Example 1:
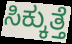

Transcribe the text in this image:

ಸಿಕ್ಕುತ್ತೆ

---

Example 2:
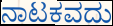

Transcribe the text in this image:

ನಾಟಕವದು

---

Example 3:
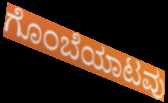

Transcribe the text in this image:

ಗೊಂಬೆಯಾಟವು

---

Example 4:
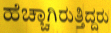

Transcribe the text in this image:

ಹೆಚ್ಚಾಗಿರುತ್ತಿದ್ದರು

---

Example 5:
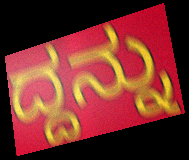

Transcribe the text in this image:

ದ್ದನ್ನು